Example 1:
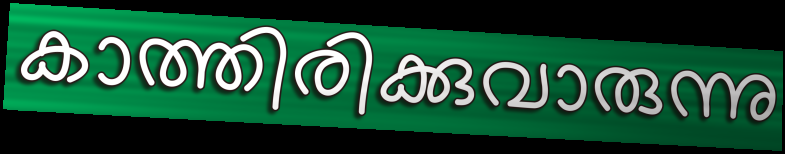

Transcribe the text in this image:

കാത്തിരിക്കുവാരുന്നു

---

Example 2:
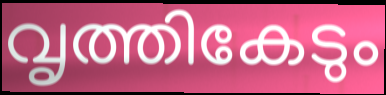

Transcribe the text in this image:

വൃത്തികേടും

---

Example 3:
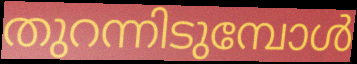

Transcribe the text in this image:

തുറന്നിടുമ്പോൾ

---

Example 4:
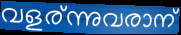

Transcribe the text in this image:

വളര്ന്നുവരാന്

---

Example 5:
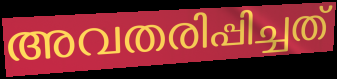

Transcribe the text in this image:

അവതരിപ്പിച്ചത്